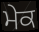
ਮੇਕ